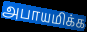
அபாயமிக்க